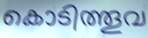
കൊടിത്തൂവ